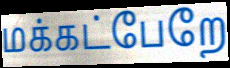
மக்கட்பேறே